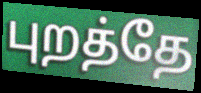
புறத்தே